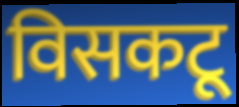
विसकटू